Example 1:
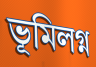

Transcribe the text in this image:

ভূমিলগ্ন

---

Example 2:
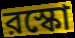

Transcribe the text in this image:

রস্কো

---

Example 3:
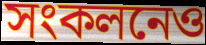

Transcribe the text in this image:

সংকলনেও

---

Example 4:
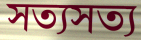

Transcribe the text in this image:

সত্যসত্য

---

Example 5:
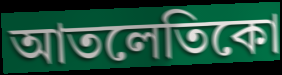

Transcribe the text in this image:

আতলেতিকো